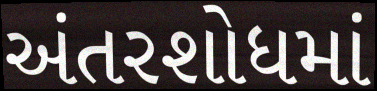
અંતરશોધમાં